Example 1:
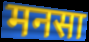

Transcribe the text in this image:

मनसा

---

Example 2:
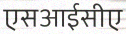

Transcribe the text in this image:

एसआईसीए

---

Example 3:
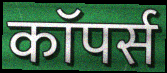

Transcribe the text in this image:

कॉपर्स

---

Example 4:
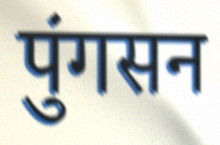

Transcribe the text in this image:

पुंगसन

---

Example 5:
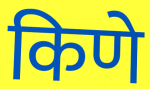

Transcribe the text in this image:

किणे